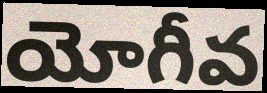
యోగీవ